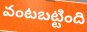
వంటబట్టింది